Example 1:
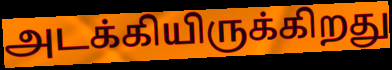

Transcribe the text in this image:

அடக்கியிருக்கிறது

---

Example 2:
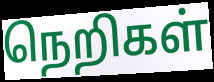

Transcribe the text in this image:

நெறிகள்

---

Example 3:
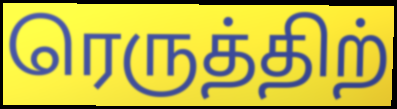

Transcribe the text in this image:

ரெருத்திற்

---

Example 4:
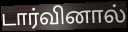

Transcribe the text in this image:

டார்வினால்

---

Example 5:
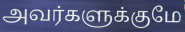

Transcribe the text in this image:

அவர்களுக்குமே